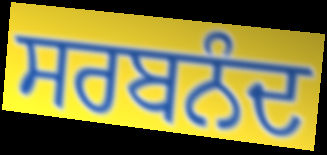
ਸਰਬਨੰਦ